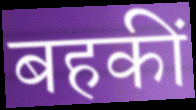
बहकीं